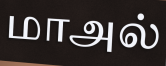
மாஅல்